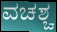
ವಚಶ್ಚ